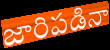
జారిపడినా